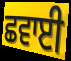
ਛਵਾਈ